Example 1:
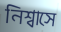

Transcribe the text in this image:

নিশ্বাসে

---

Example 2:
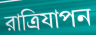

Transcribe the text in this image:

রাত্রিযাপন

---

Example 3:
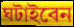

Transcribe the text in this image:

ঘটাইবেন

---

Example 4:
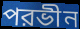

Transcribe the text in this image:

পরভীন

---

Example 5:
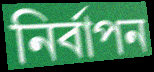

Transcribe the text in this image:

নির্বাপন